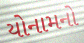
યોનામનો